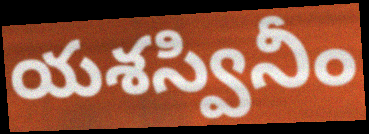
యశస్వినీం